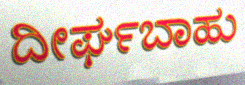
ದೀರ್ಘಬಾಹು